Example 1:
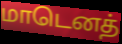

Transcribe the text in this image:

மாடெனத்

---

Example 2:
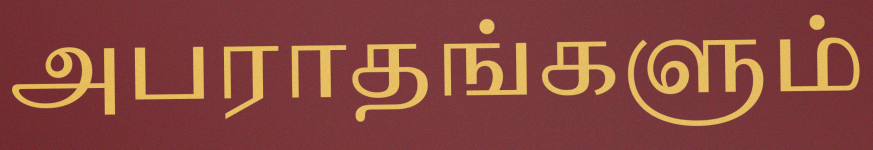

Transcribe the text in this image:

அபராதங்களும்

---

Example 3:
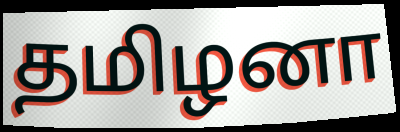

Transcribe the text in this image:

தமிழனா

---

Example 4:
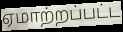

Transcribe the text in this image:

ஏமாற்றப்பட்ட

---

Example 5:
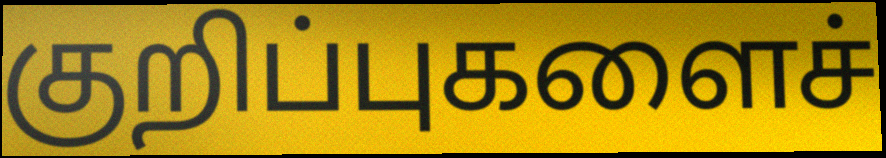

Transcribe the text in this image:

குறிப்புகளைச்